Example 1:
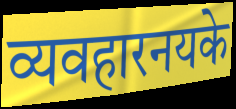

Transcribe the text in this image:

व्यवहारनयके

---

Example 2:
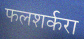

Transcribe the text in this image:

फलशर्करा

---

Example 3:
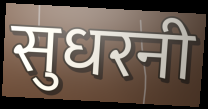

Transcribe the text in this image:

सुधरनी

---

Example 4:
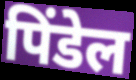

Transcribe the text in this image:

पिंडेल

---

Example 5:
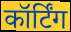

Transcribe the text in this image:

कॉर्टिंग